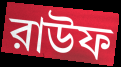
রাউফ